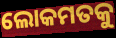
ଲୋକମତକୁ